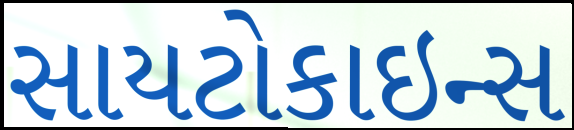
સાયટોકાઇન્સ